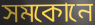
সমকোনে